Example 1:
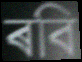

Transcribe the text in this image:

ৰবি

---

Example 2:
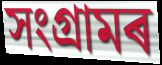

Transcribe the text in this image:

সংগ্ৰামৰ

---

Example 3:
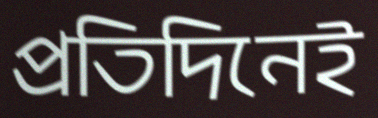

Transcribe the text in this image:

প্ৰতিদিনেই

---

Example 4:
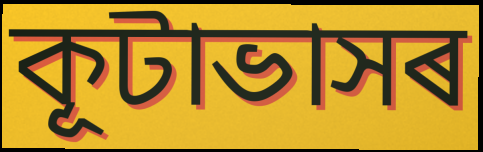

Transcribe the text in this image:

কূটাভাসৰ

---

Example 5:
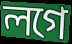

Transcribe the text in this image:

লগে